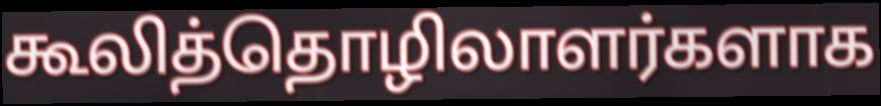
கூலித்தொழிலாளர்களாக